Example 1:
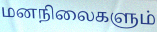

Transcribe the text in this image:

மனநிலைகளும்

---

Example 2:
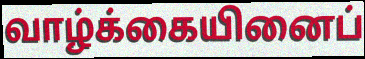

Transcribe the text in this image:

வாழ்க்கையினைப்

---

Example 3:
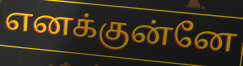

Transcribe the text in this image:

எனக்குன்னே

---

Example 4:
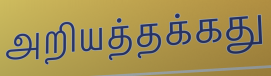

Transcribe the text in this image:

அறியத்தக்கது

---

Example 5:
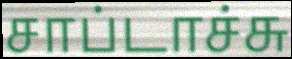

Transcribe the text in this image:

சாப்டாச்சு